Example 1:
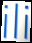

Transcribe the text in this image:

ili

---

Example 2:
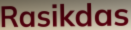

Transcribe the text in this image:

Rasikdas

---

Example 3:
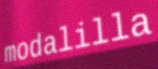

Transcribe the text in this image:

modalilla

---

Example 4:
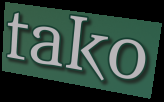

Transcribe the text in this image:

tako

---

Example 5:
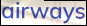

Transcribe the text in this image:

airways